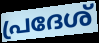
പ്രദേശ്